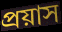
প্রয়াস